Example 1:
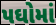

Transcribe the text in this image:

પઘોમાં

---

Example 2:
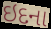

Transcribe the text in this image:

ઇદના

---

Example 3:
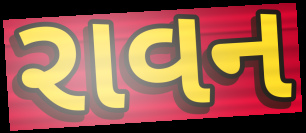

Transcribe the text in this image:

રાવન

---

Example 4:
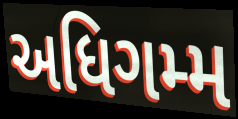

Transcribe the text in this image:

અધિગમ્મ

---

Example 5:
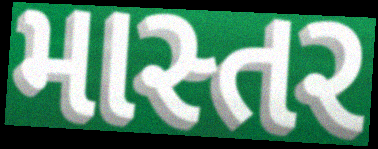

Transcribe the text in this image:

માસ્તર